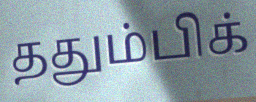
ததும்பிக்